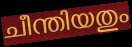
ചീന്തിയതും